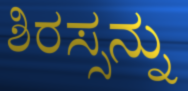
ಶಿರಸ್ಸನ್ನು